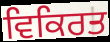
ਵਿਕਿਰਤ